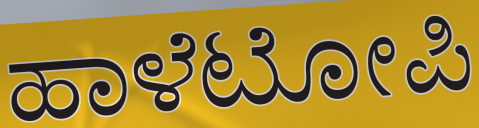
ಹಾಳೆಟೋಪಿ